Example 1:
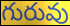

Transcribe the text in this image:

గురువు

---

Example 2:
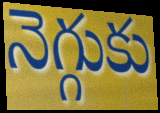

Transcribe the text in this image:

నెగ్గుకు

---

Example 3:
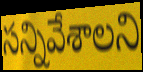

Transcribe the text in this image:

సన్నివేశాలని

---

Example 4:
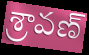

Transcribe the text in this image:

శ్రావణ్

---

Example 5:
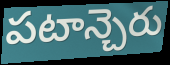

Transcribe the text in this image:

పటాన్చెరు